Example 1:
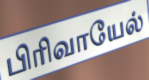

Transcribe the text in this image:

பிரிவாயேல்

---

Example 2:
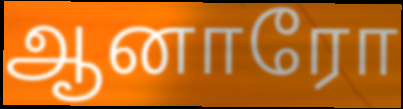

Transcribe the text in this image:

ஆனாரோ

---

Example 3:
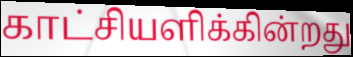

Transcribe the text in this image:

காட்சியளிக்கின்றது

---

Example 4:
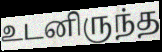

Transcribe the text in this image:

உடனிருந்த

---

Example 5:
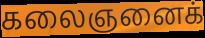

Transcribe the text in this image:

கலைஞனைக்